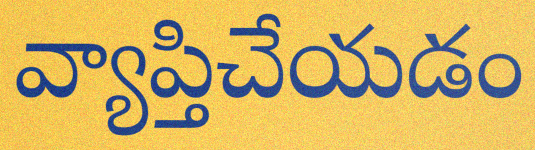
వ్యాప్తిచేయడం